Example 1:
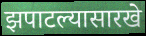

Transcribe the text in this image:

झपाटल्यासारखे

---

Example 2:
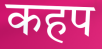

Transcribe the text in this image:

कहप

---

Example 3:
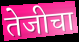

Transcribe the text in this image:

तेजीचा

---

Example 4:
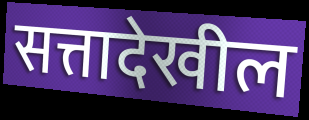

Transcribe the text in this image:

सत्तादेखील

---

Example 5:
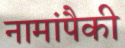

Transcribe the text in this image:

नामांपैकी